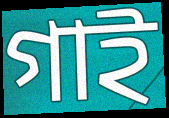
গাই